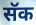
सॅक